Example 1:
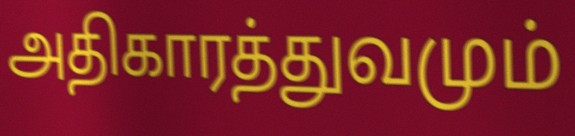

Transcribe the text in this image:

அதிகாரத்துவமும்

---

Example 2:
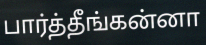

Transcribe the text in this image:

பார்த்தீங்கன்னா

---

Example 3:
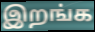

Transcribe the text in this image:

இறங்க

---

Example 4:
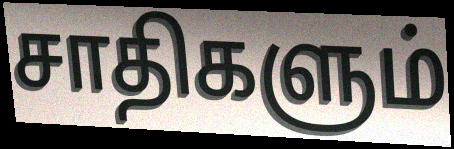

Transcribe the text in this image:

சாதிகளும்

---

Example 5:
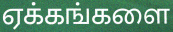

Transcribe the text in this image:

ஏக்கங்களை